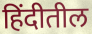
हिंदीतील